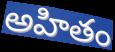
అహితం